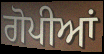
ਗੋਪੀਆਂ